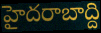
హైదరాబాద్ది